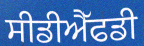
ਸੀਡੀਐੱਫਡੀ